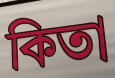
কিতা